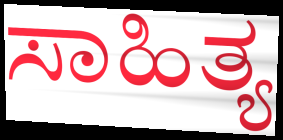
ಸಾಹಿತ್ಯ